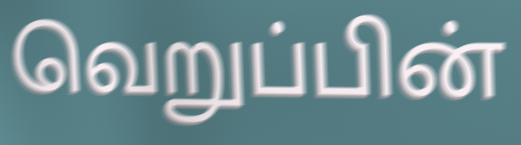
வெறுப்பின்